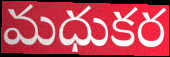
మధుకర